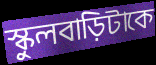
স্কুলবাড়িটাকে